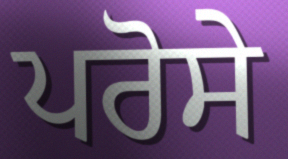
ਪਰੋਸੇ